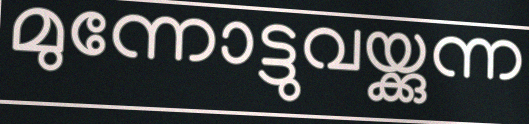
മുന്നോട്ടുവയ്ക്കുന്ന